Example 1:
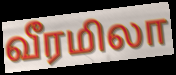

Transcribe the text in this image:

வீரமிலா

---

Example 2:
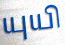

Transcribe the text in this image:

யுயி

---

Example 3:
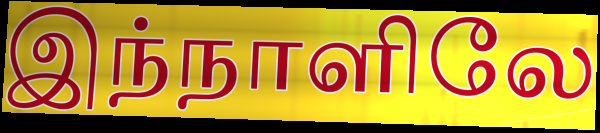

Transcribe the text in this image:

இந்நாளிலே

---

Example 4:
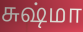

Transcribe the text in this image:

சுஷ்மா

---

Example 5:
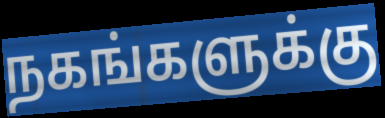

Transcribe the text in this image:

நகங்களுக்கு